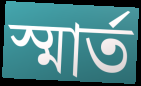
স্মার্ত